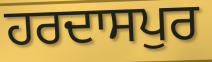
ਹਰਦਾਸਪੁਰ